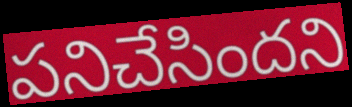
పనిచేసిందని